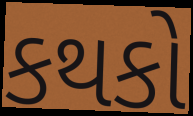
કથકો